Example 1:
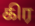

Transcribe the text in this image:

கிர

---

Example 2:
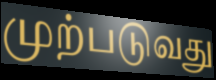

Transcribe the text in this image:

முற்படுவது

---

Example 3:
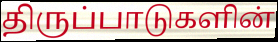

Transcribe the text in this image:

திருப்பாடுகளின்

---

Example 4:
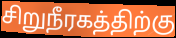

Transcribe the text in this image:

சிறுநீரகத்திற்கு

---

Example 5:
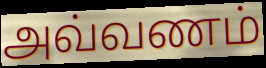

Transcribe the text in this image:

அவ்வணம்